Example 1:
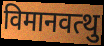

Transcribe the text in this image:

विमानवत्थु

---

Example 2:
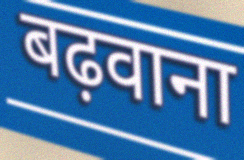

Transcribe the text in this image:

बढ़वाना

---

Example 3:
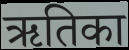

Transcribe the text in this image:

ऋतिका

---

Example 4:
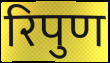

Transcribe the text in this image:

रिपुण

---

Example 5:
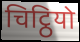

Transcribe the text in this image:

चिट्ठियो